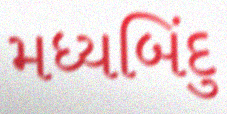
મધ્યબિંદુ